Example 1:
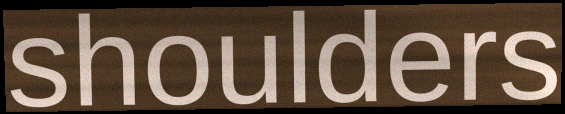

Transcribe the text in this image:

shoulders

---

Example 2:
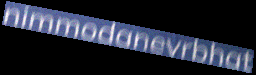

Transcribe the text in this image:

nimmodanevrbhat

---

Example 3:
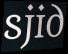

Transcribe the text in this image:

sjid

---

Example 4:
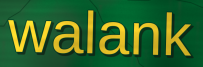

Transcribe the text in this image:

walank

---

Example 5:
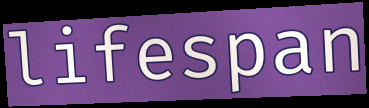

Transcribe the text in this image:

lifespan